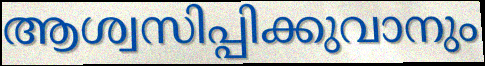
ആശ്വസിപ്പിക്കുവാനും